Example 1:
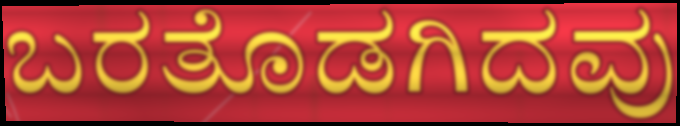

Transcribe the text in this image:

ಬರತೊಡಗಿದವು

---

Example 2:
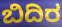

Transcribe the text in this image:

ಬಿದಿರ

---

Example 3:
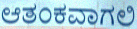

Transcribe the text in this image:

ಆತಂಕವಾಗಲಿ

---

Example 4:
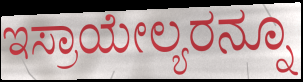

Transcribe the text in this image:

ಇಸ್ರಾಯೇಲ್ಯರನ್ನೂ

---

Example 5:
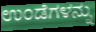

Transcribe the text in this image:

ಉಂಡೆಗಳನ್ನು